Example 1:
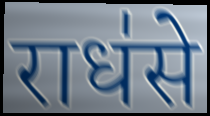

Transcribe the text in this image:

राध॑से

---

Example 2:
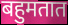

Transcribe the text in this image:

बहुमतात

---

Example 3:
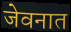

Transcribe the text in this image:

जेवनात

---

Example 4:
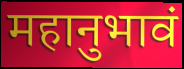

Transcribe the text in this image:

महानुभावं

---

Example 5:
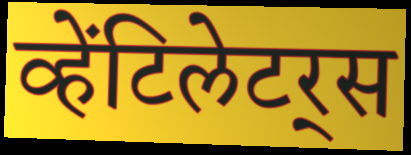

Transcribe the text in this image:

व्हेंटिलेटर्स